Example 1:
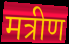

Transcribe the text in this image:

मत्रीण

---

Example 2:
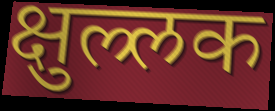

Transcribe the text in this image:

क्षुल्लक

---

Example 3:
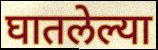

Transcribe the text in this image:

घातलेल्या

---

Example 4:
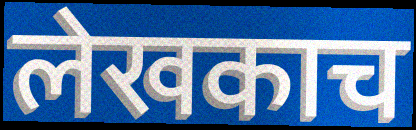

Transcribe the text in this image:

लेखकाच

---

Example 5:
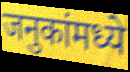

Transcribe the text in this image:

जनुकांमध्ये